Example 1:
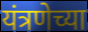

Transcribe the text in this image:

यंत्रणेच्या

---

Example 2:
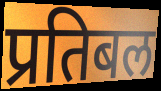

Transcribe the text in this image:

प्रतिबल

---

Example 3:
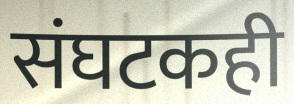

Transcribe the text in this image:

संघटकही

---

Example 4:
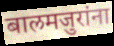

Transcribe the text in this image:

बालमजुरांना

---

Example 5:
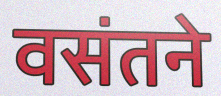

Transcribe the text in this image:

वसंतने